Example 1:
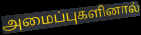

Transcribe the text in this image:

அமைப்புகளினால்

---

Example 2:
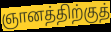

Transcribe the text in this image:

ஞானத்திற்குத்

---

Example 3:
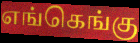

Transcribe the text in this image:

எங்கெங்கு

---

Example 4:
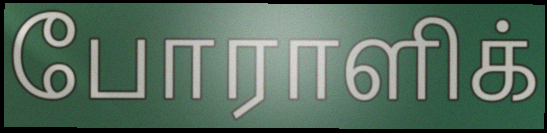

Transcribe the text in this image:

போராளிக்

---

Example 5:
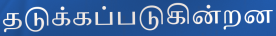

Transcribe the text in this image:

தடுக்கப்படுகின்றன